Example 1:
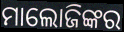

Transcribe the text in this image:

ମାଲୋଜିଙ୍କର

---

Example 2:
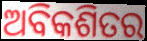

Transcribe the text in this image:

ଅବିକଶିତର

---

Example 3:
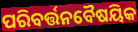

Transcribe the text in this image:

ପରିବର୍ତ୍ତନବୈଷୟିକ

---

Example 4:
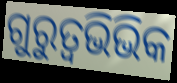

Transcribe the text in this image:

ଗୁରୁତ୍ଵଭିଭିକ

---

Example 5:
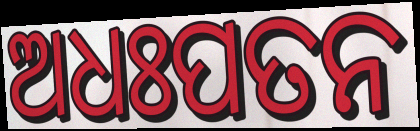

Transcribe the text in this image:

ଅଧଃପତନ